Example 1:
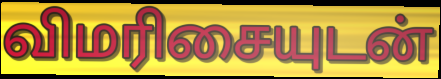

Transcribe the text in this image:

விமரிசையுடன்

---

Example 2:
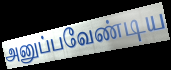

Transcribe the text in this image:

அனுப்பவேண்டிய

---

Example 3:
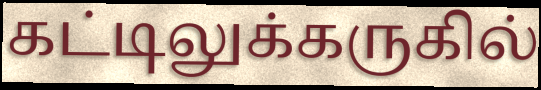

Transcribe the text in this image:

கட்டிலுக்கருகில்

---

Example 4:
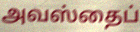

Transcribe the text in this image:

அவஸ்தைப்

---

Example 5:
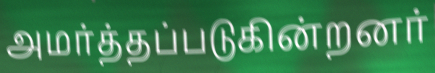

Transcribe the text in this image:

அமர்த்தப்படுகின்றனர்